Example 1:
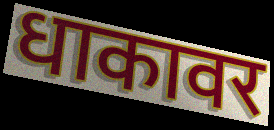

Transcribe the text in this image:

धाकावर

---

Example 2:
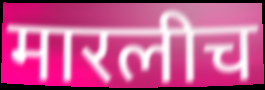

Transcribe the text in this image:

मारलीच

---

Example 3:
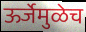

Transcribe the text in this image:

ऊर्जेमुळेच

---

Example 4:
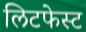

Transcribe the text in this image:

लिटफेस्ट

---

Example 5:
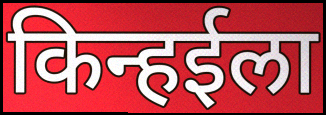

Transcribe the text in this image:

किन्हईला